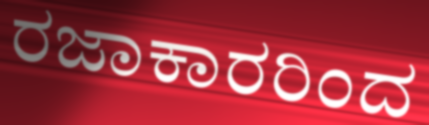
ರಜಾಕಾರರಿಂದ